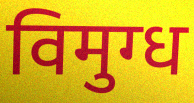
विमुग्ध